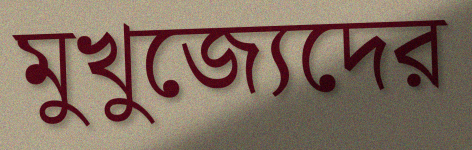
মুখুজ্যেদের